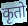
कृतो